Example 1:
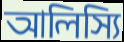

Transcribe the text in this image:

আলিস্যি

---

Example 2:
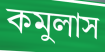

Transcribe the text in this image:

কমুলাস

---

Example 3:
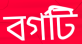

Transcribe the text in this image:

বর্গটি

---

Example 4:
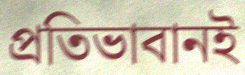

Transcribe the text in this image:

প্রতিভাবানই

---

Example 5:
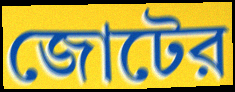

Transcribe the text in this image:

জোটের